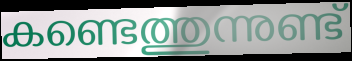
കണ്ടെത്തുന്നുണ്ട്